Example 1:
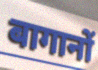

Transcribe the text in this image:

बागानों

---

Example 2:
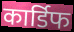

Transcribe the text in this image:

कार्डिफ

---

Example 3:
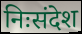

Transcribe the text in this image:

निःसंदेश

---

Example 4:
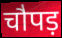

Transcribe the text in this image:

चौपड़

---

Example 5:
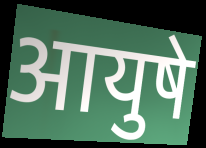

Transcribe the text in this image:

आयुषे